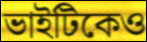
ভাইটিকেও